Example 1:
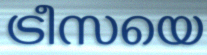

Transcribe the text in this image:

ട്രീസയെ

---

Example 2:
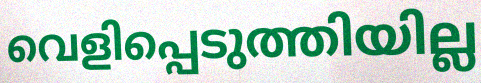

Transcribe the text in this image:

വെളിപ്പെടുത്തിയില്ല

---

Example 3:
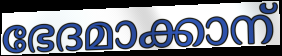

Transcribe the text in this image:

ഭേദമാക്കാന്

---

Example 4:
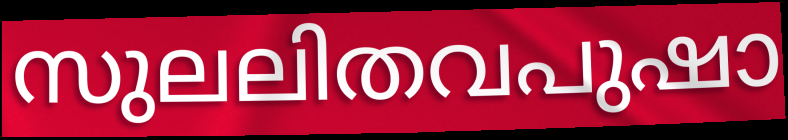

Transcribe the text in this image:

സുലലിതവപുഷാ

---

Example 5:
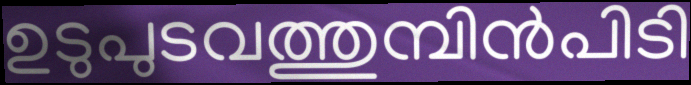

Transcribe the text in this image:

ഉടുപുടവത്തുമ്പിൻപിടി